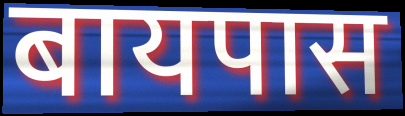
बायपास